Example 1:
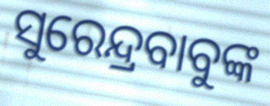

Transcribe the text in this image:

ସୁରେନ୍ଦ୍ରବାବୁଙ୍କ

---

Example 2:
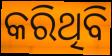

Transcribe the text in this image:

କରିଥିବି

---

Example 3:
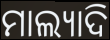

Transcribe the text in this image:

ମାଲ୍ୟାଦି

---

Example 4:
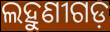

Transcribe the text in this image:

ଲହୁଣୀଗଡ଼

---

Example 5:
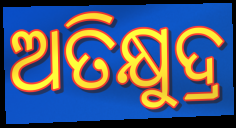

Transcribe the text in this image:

ଅତିକ୍ଷୁଦ୍ର